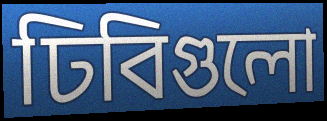
ঢিবিগুলো